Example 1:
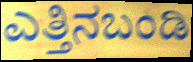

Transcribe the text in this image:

ಎತ್ತಿನಬಂಡಿ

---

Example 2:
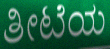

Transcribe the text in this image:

ತೀಟೆಯ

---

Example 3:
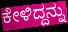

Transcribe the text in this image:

ಕೇಳಿದ್ದನ್ನು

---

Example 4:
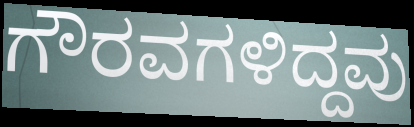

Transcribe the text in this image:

ಗೌರವಗಳಿದ್ದವು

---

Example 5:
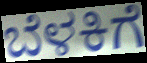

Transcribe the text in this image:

ಬೆಳಕಿಗೆ